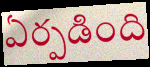
ఏర్పడింది